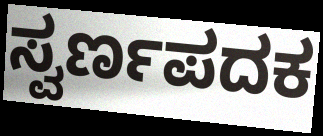
ಸ್ವರ್ಣಪದಕ